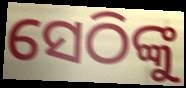
ସେଠିଙ୍କୁ